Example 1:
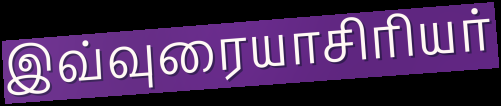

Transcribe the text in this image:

இவ்வுரையாசிரியர்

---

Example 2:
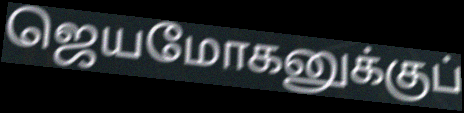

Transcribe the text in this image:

ஜெயமோகனுக்குப்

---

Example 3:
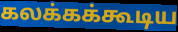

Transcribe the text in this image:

கலக்கக்கூடிய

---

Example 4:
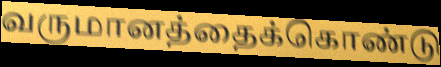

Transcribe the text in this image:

வருமானத்தைக்கொண்டு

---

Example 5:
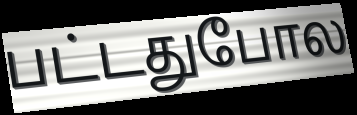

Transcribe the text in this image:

பட்டதுபோல